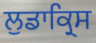
ਲੁਡਾਕ੍ਰਿਸ